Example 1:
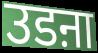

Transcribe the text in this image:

उडऩा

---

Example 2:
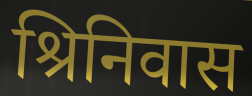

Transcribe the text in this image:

श्रिनिवास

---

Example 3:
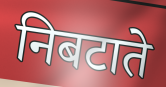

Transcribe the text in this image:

निबटाते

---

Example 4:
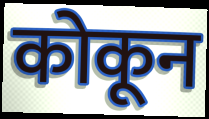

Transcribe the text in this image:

कोकून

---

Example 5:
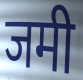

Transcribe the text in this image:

जमी